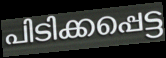
പിടിക്കപ്പെട്ട